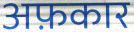
अफ़कार